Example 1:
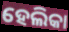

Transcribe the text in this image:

ହେଲିକା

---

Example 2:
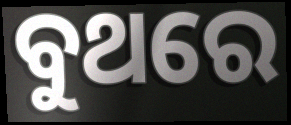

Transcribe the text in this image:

ବୁଥରେ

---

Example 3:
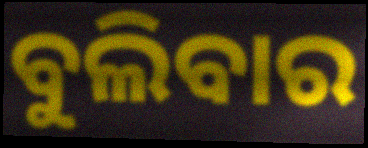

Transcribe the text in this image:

ବୁଲିବାର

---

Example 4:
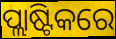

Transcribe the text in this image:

ପ୍ଲାଷ୍ଟିକରେ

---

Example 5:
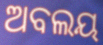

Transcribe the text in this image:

ଅବଲୟ